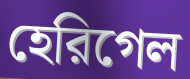
হেরিগেল